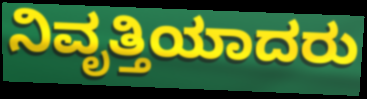
ನಿವೃತ್ತಿಯಾದರು